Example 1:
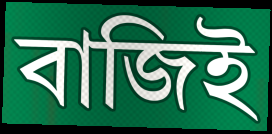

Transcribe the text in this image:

বাজিই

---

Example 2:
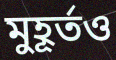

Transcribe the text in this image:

মুহূর্তও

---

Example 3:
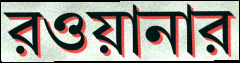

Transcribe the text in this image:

রওয়ানার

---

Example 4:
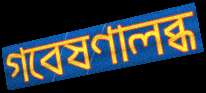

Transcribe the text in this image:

গবেষণালব্ধ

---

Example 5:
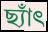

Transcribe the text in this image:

ছ্যাঁৎ